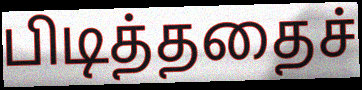
பிடித்ததைச்